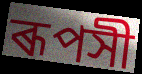
ৰূপসী